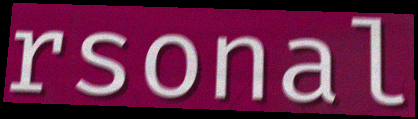
rsonal